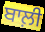
ਬਾਲ਼ੀ